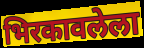
भिरकावलेला